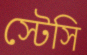
স্টেসি